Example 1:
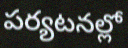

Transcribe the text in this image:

పర్యటనల్లో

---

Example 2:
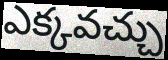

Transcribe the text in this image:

ఎక్కవచ్చు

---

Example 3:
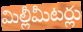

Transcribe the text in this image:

మిల్లీమీటర్లు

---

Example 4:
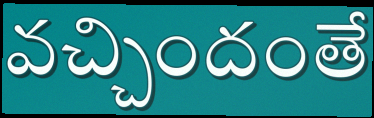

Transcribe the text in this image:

వచ్చిందంతే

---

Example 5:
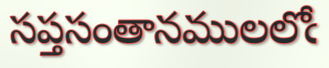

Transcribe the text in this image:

సప్తసంతానములలోఁ